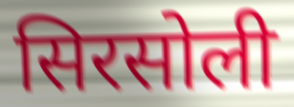
सिरसोली